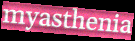
myasthenia